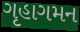
ગૃહાગમન